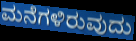
ಮನೆಗಳಿರುವುದು